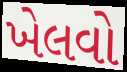
ખેલવો